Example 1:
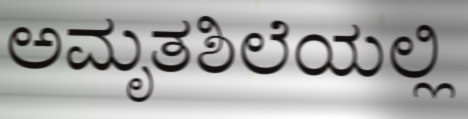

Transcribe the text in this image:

ಅಮೃತಶಿಲೆಯಲ್ಲಿ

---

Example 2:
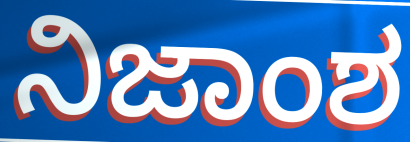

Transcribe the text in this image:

ನಿಜಾಂಶ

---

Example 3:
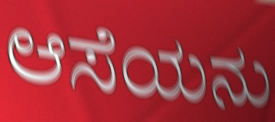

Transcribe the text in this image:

ಆಸೆಯನು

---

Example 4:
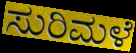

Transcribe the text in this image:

ಸುರಿಮಳೆ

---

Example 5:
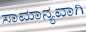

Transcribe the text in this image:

ಸಾಮಾನ್ಯವಾಗಿ